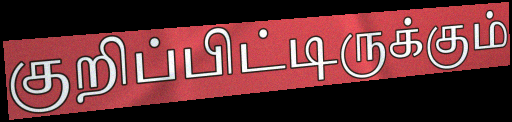
குறிப்பிட்டிருக்கும்